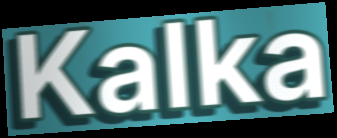
Kalka